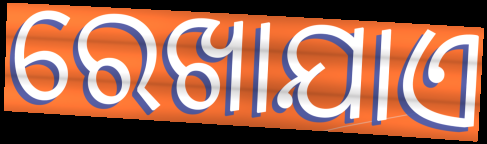
ରେଖାଯାଏ